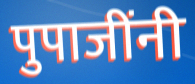
पुपाजींनी